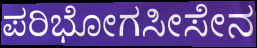
ಪರಿಭೋಗಸೀಸೇನ